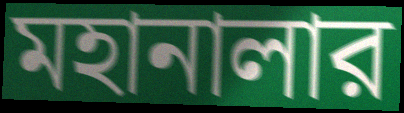
মহানালার